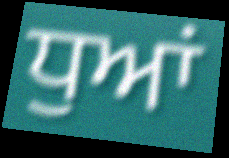
ਧੁਆਂ